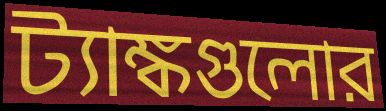
ট্যাঙ্কগুলোর